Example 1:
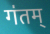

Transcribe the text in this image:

ग॑तम्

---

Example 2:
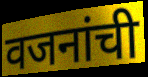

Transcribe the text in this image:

वजनांची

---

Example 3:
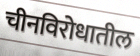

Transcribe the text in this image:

चीनविरोधातील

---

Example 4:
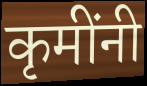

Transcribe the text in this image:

कृमींनी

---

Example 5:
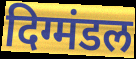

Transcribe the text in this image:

दिग्मंडल